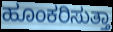
ಹೂಂಕರಿಸುತ್ತಾ